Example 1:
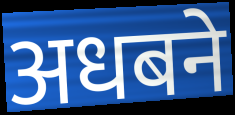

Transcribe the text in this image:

अधबने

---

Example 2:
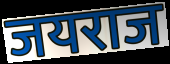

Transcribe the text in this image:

जयराज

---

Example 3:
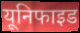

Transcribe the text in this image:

यूनिफाइड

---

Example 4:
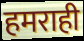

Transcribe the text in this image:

हमराही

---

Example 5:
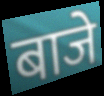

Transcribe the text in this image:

बाजे